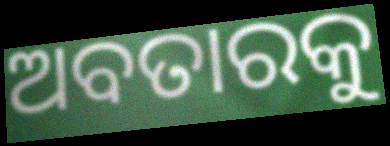
ଅବତାରକୁ